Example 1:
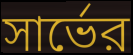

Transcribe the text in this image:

সার্ভের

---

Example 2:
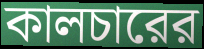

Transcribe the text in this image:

কালচারের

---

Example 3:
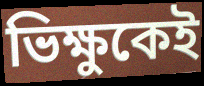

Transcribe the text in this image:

ভিক্ষুকেই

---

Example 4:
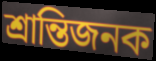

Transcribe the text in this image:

শ্রান্তিজনক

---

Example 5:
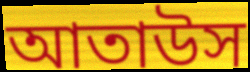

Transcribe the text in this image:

আতাউস